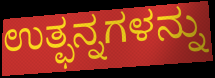
ಉತ್ಫನ್ನಗಳನ್ನು